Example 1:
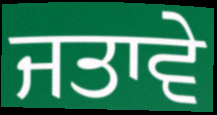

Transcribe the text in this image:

ਜਤਾਵੇ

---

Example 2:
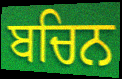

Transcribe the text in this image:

ਬਚਿਨ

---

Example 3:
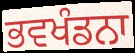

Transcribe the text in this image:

ਭਵਖੰਡਨਾ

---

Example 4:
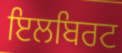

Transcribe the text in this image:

ਇਲਬਿਰਟ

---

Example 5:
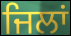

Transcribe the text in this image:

ਜਿਲਾਂ